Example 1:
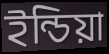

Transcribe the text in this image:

ইন্ডিয়া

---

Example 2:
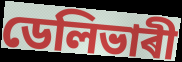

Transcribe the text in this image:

ডেলিভাৰী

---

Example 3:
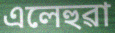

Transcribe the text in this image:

এলেহুৱা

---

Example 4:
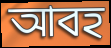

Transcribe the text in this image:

আবহ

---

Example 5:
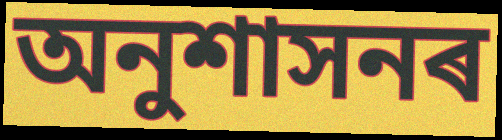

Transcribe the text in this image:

অনুশাসনৰ